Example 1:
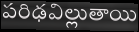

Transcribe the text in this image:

పరిఢవిల్లుతాయి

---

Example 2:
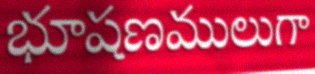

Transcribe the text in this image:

భూషణములుగా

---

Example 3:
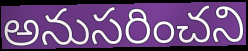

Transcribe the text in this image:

అనుసరించని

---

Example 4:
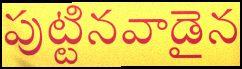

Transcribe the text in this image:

పుట్టినవాడైన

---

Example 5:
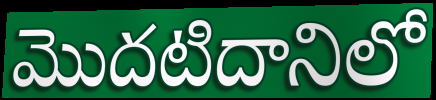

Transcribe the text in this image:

మొదటిదానిలో